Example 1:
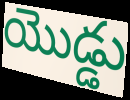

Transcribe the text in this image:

యొడ్డు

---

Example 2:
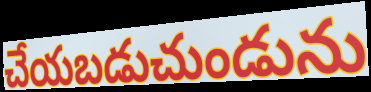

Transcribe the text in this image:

చేయబడుచుండును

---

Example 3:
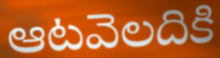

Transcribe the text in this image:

ఆటవెలదికి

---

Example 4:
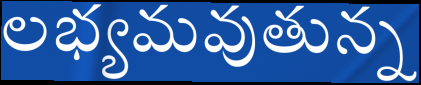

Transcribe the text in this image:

లభ్యమవుతున్న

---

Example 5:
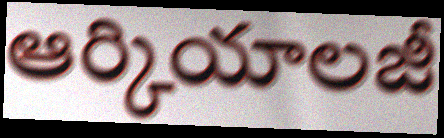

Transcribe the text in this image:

ఆర్కియాలజీ